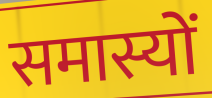
समास्यों